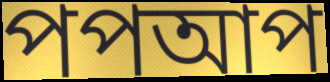
পপআপ